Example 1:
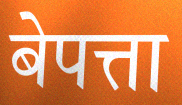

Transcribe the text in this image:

बेपत्ता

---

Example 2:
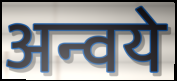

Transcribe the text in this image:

अन्वये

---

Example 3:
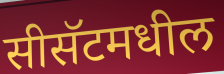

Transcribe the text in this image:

सीसॅटमधील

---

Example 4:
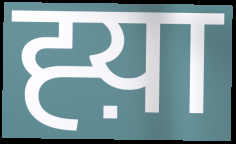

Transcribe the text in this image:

ह्य़ा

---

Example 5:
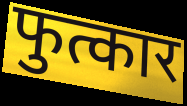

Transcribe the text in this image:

फुत्कार